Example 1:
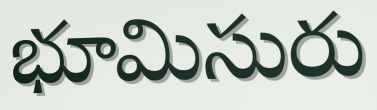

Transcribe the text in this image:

భూమిసురు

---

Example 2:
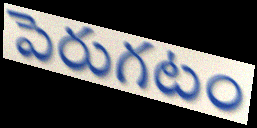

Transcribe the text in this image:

పెరుగటం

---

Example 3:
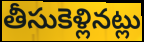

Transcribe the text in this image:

తీసుకెళ్లినట్లు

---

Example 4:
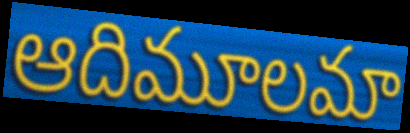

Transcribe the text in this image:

ఆదిమూలమా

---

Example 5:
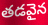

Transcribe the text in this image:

తడవైన